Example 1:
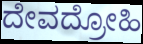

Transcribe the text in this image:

ದೇವದ್ರೋಹಿ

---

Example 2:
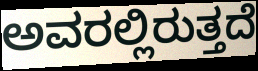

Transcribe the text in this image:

ಅವರಲ್ಲಿರುತ್ತದೆ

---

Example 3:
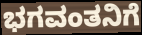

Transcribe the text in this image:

ಭಗವಂತನಿಗೆ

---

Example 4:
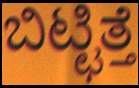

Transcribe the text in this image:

ಬಿಟ್ಟಿತ್ತೆ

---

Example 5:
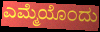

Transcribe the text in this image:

ಎಮ್ಮೆಯೊಂದು